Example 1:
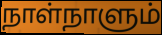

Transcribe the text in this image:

நாள்நாளும்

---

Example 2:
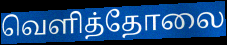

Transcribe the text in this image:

வெளித்தோலை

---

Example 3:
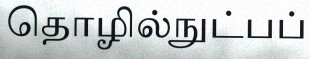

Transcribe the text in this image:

தொழில்நுட்பப்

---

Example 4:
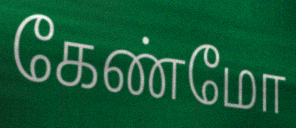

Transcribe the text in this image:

கேண்மோ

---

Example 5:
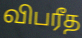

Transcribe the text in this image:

விபரீத